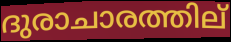
ദുരാചാരത്തില്